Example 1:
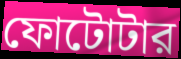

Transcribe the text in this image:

ফোটোটার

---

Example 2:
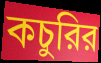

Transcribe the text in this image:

কচুরির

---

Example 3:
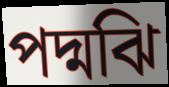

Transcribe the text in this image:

পদ্মঝি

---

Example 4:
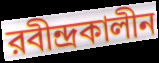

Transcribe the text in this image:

রবীন্দ্রকালীন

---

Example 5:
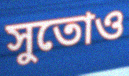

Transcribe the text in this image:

সুতোও